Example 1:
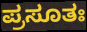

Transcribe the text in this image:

ಪ್ರಸೂತಃ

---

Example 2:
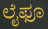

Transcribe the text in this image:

ಲೈಫೂ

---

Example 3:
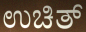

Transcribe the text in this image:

ಉಚಿತ್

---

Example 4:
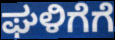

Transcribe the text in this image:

ಘಳಿಗೆಗೆ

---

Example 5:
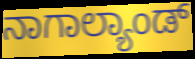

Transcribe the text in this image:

ನಾಗಾಲ್ಯಾಂಡ್